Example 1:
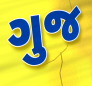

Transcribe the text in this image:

ગુજ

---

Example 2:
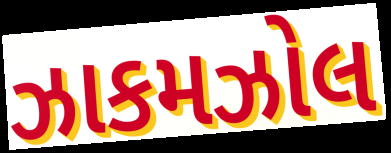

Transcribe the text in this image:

ઝાકમઝોલ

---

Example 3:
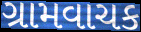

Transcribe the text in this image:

ગ્રામવાચક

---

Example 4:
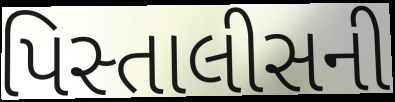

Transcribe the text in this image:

પિસ્તાલીસની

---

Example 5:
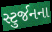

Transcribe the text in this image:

સ્ટુર્જનના